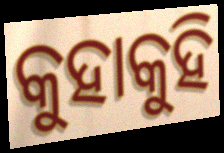
କୁହାକୁହି